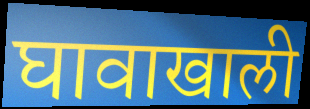
घावाखाली